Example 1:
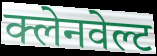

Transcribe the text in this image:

क्लेनवेल्ट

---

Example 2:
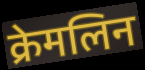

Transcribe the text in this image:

क्रेमलिन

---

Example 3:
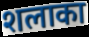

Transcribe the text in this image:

शलाका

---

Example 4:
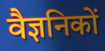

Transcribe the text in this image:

वैज्ञनिकों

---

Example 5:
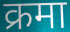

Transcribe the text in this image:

क्रमा